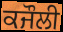
ਕਜੌਲੀ